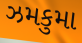
ઝમકુમા